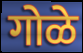
गोळे